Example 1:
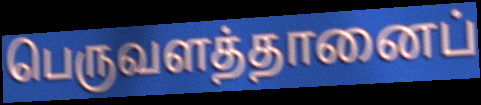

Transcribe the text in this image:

பெருவளத்தானைப்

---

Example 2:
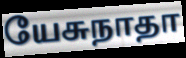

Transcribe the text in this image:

யேசுநாதா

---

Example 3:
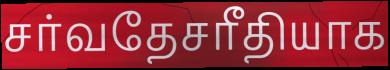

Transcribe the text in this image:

சர்வதேசரீதியாக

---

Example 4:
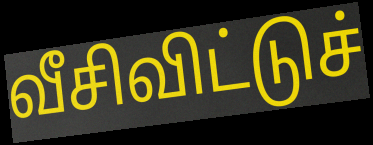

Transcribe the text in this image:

வீசிவிட்டுச்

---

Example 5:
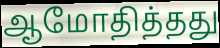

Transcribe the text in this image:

ஆமோதித்தது